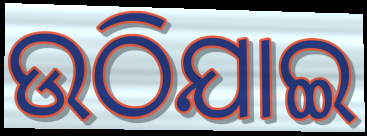
ଉଠିଯାଇ